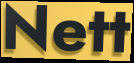
Nett